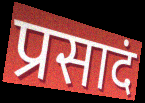
प्रसादं